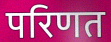
परिणत